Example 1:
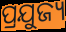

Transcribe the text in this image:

ପ୍ରଯୁଜ୍ୟ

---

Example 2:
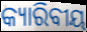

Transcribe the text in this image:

କ୍ୟାରିବୀୟ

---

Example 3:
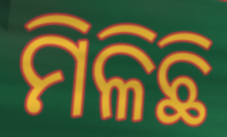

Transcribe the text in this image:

ମିଳିଛି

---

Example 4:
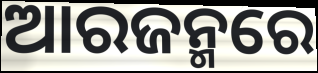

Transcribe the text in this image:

ଆରଜନ୍ମରେ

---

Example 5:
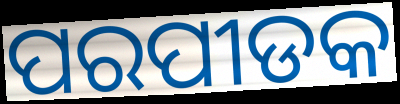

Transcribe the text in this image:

ପରପୀଡକ